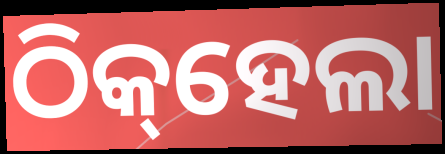
ଠିକ୍‌ହେଲା